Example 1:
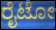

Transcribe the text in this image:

ರೈಟೋ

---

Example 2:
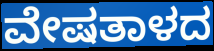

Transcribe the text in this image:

ವೇಷತಾಳದ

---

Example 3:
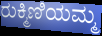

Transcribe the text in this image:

ರುಕ್ಮಿಣಿಯಮ್ಮ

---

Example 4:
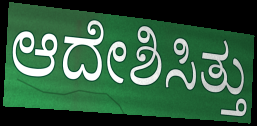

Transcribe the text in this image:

ಆದೇಶಿಸಿತ್ತು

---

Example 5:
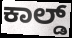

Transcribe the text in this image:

ಕಾಲ್ಡ್